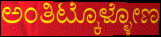
ಅಂತಿಟ್ಕೊಳ್ಳೋಣ